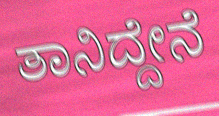
ತಾನಿದ್ದೇನೆ